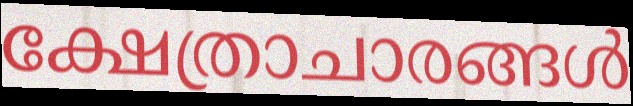
ക്ഷേത്രാചാരങ്ങൾ